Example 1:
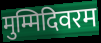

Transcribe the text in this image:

मुम्मिदिवरम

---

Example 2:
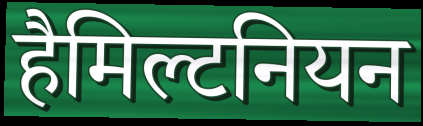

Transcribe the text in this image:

हैमिल्टनियन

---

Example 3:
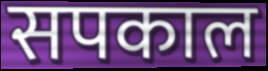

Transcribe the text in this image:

सपकाल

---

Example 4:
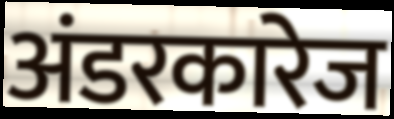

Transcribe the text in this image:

अंडरकारेज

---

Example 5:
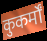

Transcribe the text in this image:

कुकर्मों